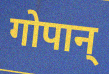
गोपान्